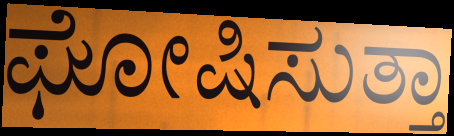
ಘೋಷಿಸುತ್ತಾ